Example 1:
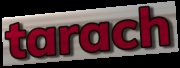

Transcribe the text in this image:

tarach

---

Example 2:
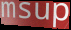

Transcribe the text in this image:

msup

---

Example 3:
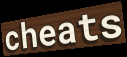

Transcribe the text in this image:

cheats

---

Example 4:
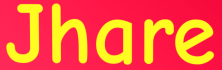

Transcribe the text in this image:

Jhare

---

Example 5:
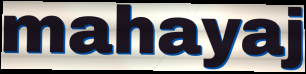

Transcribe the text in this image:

mahayaj